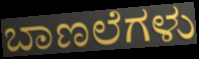
ಬಾಣಲೆಗಳು